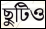
ছুটিও